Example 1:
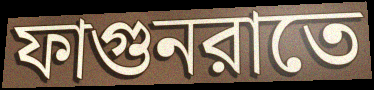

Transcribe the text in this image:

ফাগুনরাতে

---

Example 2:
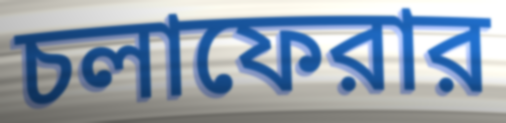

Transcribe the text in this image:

চলাফেরার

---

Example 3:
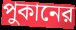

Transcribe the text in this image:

পুকানের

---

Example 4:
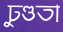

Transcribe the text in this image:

ঢুণ্ডতা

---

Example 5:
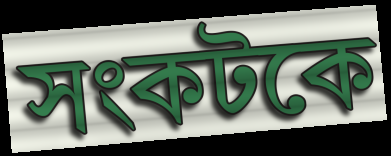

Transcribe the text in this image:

সংকটকে